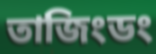
তাজিংডং